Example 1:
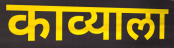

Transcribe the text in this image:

काव्याला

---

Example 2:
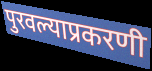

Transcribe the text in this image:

पुरवल्याप्रकरणी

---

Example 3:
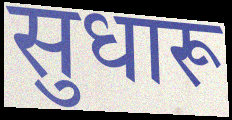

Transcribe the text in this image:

सुधारू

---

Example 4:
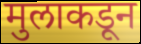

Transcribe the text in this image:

मुलाकडून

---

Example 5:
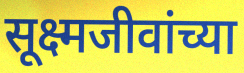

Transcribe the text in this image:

सूक्ष्मजीवांच्या